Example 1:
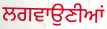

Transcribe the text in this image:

ਲਗਵਾਉਣੀਆਂ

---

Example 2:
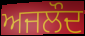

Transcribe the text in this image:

ਅਜਲੌਦ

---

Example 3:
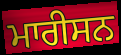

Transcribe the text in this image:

ਮਾਰੀਸਨ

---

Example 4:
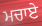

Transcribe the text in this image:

ਮਚਾਏ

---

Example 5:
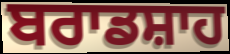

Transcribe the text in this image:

ਬਰਾਡਸ਼ਾਹ